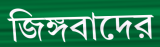
জিঙ্গবাদের